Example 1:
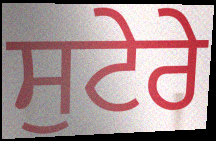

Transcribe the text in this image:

ਸੁਟੇਰੇ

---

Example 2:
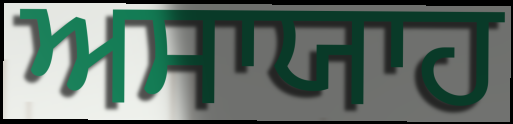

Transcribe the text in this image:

ਅਸਾਯਾਹ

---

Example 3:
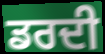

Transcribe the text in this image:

ਡਰਦੀ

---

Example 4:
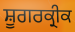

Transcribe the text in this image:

ਸ਼ੂਗਰਕ੍ਰੀਕ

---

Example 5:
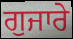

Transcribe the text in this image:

ਗੁਜਾਰੇ